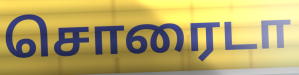
சொரைடா